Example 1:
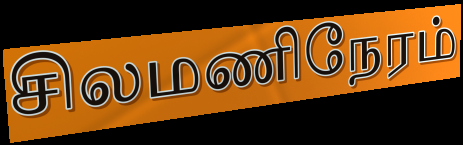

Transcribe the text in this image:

சிலமணிநேரம்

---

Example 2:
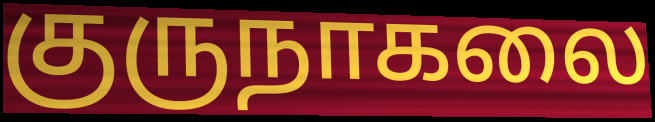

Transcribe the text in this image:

குருநாகலை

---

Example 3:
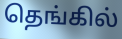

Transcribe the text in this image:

தெங்கில்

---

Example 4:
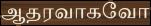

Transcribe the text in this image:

ஆதரவாகவோ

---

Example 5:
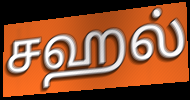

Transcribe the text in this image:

சஹல்